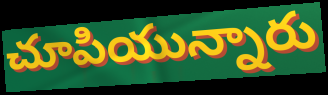
చూపియున్నారు